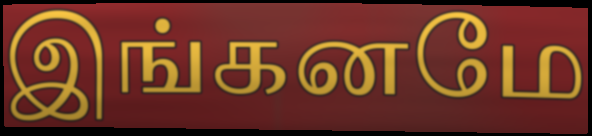
இங்கனமே